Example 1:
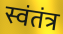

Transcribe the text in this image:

स्वंतंत्र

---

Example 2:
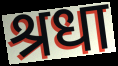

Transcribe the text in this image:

श्रधा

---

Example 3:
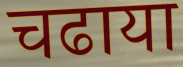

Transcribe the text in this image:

चढाया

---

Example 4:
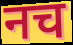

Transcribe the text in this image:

नच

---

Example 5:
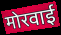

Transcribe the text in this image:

मोरवाई